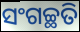
ସଂଗଚ୍ଛତି